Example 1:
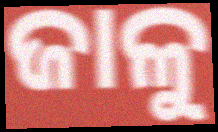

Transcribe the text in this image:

ଜାଳୁ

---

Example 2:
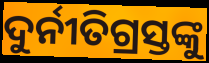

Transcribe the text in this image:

ଦୁର୍ନୀତିଗ୍ରସ୍ତଙ୍କୁ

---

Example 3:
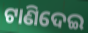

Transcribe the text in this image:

ଟାଣିଦେଇ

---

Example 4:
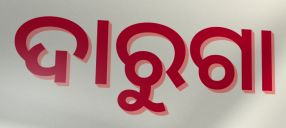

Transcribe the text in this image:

ଦାରୁଗା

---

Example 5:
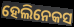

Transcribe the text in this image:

ହେଲିନେକସ